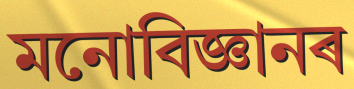
মনোবিজ্ঞানৰ